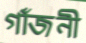
গাঁজনী